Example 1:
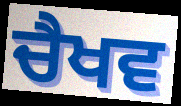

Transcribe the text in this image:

ਚੈਖਵ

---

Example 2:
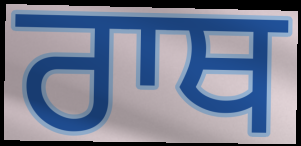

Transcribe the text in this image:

ਰਾਥ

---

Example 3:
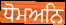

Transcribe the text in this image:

ਧੋਮਅਨਿ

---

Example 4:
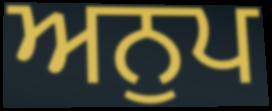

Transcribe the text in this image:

ਅਨੁਪ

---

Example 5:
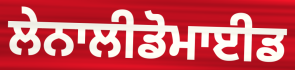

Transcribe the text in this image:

ਲੇਨਾਲੀਡੋਮਾਈਡ